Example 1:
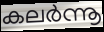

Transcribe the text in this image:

കലർന്നൂ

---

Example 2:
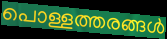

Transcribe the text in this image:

പൊള്ളത്തരങ്ങൾ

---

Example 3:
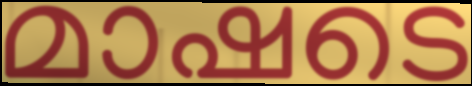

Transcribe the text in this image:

മാഷടെ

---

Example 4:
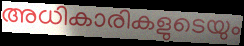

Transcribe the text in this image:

അധികാരികളുടെയും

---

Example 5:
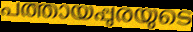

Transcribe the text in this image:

പത്തായപ്പുരയുടെ